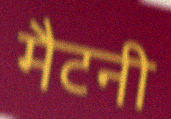
मैटनी